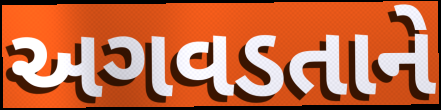
અગવડતાને